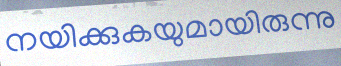
നയിക്കുകയുമായിരുന്നു